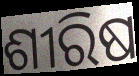
ଶୀରିଷ